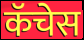
कॅचेस